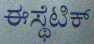
ಈಸ್ಥೆಟಿಕ್